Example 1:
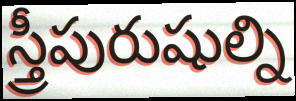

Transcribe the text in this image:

స్త్రీపురుషుల్ని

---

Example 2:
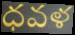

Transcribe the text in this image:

ధవళ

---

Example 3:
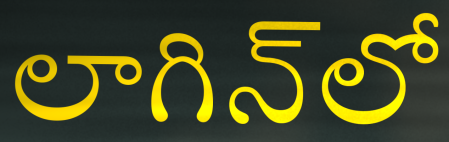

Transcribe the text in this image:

లాగిన్‌లో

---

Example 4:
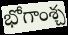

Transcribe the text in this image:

భోగాంశ్చ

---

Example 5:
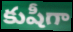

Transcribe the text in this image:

కుషీగా